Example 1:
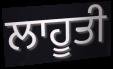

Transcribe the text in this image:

ਲਾਹੂਤੀ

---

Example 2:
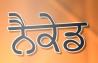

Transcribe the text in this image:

ਨੈਕੇਡ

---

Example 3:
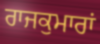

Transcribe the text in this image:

ਰਾਜਕੁਮਾਰਾਂ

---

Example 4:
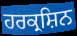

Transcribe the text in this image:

ਹਰਕ੍ਰਸ਼ਿਨ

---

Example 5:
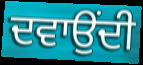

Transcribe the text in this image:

ਦਵਾਉਂਦੀ